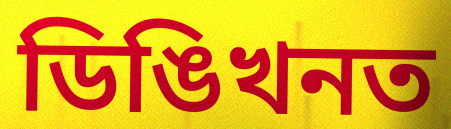
ডিঙিখনত